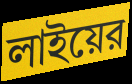
লাইয়ের